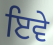
ਇਵੇ